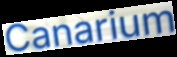
Canarium